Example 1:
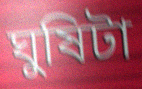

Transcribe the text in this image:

ঘুষিটা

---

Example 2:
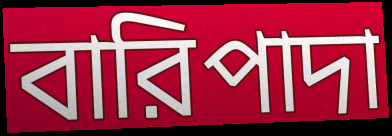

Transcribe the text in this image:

বারিপাদা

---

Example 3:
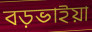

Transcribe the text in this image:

বড়ভাইয়া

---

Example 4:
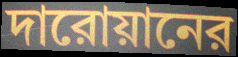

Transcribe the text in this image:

দারোয়ানের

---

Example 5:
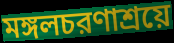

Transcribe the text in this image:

মঙ্গলচরণাশ্রয়ে